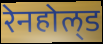
रेनहोल्ड